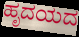
ಹೃದಯದ